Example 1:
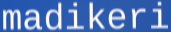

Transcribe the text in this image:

madikeri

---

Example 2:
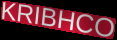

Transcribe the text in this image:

KRIBHCO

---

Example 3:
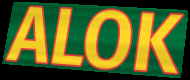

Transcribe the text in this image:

ALOK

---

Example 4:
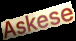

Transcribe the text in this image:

Askese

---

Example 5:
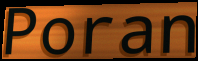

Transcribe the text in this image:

Poran